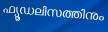
ഫ്യൂഡലിസത്തിനും